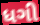
ધગી